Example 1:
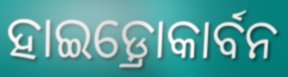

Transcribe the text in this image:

ହାଇଡ଼୍ରୋକାର୍ବନ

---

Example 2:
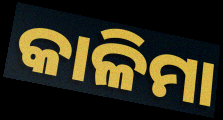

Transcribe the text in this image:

କାଳିମା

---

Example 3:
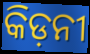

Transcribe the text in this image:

କିଡ଼ନୀ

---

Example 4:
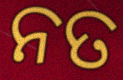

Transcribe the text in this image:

ନତ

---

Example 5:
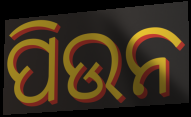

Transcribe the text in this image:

ପିଉନ